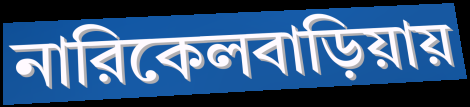
নারিকেলবাড়িয়ায়